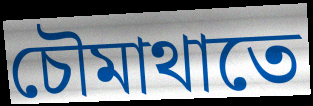
চৌমাথাতে